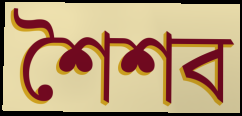
শৈশব